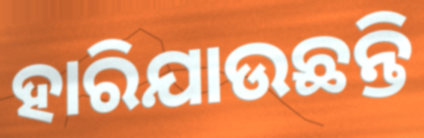
ହାରିଯାଉଛନ୍ତି